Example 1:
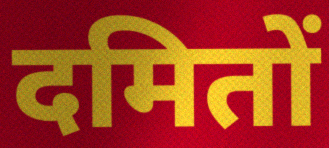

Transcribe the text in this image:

दमितों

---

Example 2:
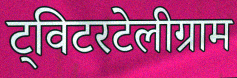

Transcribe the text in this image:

ट्विटरटेलीग्राम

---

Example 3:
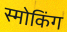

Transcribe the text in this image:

स्मोकिंग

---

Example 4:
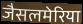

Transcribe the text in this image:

जैसलमेरिया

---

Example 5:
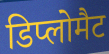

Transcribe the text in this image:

डिप्लोमैट